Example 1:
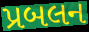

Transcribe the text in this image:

પ્રબલન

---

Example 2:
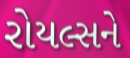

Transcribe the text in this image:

રોયલ્સને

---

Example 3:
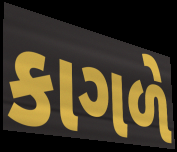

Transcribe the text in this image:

કાગળે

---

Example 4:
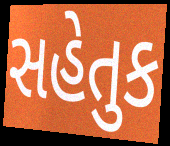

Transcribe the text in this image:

સહેતુક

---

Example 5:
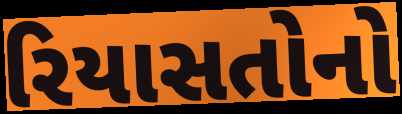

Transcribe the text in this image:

રિયાસતોનો